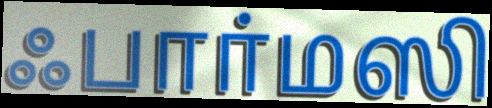
ஃபார்மஸி